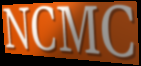
NCMC